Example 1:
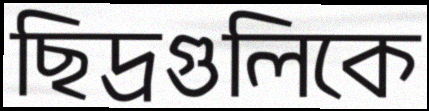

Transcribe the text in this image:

ছিদ্রগুলিকে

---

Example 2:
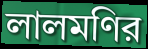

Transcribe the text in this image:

লালমণির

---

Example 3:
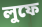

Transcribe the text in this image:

লুফে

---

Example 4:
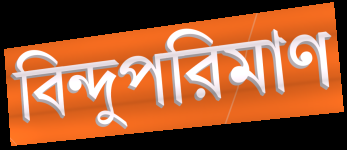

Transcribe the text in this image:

বিন্দুপরিমাণ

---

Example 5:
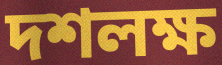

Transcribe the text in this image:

দশলক্ষ